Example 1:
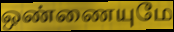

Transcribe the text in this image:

ஒண்ணையுமே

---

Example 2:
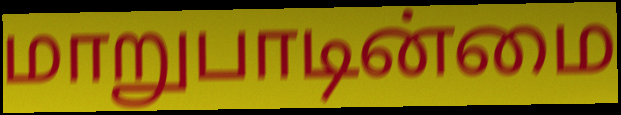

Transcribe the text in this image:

மாறுபாடின்மை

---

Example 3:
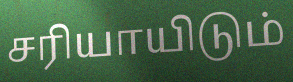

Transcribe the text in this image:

சரியாயிடும்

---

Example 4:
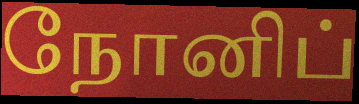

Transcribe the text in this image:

நோனிப்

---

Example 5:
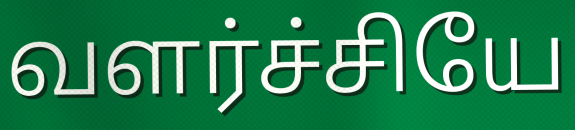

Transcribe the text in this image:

வளர்ச்சியே